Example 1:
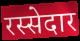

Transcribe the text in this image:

रस्सेदार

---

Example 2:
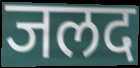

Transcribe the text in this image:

जलद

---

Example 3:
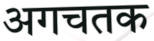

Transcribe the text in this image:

अगचतक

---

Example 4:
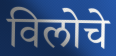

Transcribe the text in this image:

विलोचे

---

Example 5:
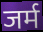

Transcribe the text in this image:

जर्म